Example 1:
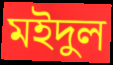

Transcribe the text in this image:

মইদুল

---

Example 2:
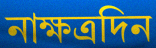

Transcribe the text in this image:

নাক্ষত্রদিন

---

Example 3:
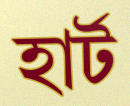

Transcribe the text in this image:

হার্ট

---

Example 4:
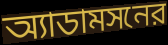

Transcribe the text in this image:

অ্যাডামসনের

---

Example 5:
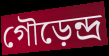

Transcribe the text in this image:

গৌড়েন্দ্র